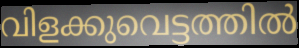
വിളക്കുവെട്ടത്തിൽ